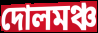
দোলমঞ্চ